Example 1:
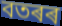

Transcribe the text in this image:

বতৰৰ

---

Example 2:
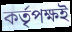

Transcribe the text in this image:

কৰ্তৃপক্ষই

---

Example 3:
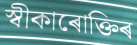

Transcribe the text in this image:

স্বীকাৰোক্তিৰ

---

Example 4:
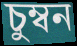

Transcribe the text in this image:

চুম্বন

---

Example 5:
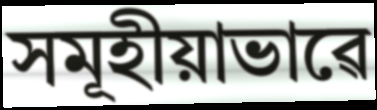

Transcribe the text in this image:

সমূহীয়াভাৱে